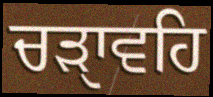
ਚੜੑਾਵਹਿ